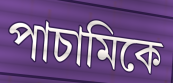
পাচামিকে